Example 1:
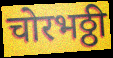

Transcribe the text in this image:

चोरभठ्ठी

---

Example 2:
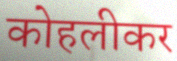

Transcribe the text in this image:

कोहलीकर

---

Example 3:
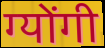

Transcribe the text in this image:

ग्योंगी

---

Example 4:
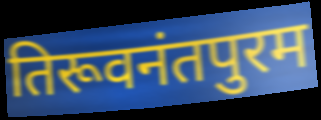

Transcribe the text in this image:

तिरूवनंतपुरम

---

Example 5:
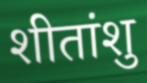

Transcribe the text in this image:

शीतांशु